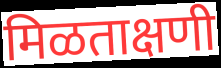
मिळताक्षणी